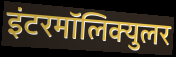
इंटरमॉलिक्युलर